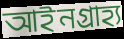
আইনগ্রাহ্য